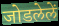
जोडलेलें